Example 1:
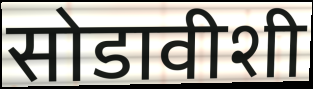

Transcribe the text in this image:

सोडावीशी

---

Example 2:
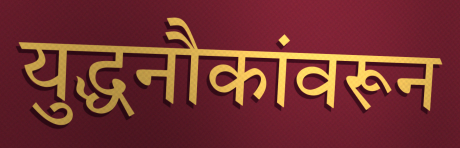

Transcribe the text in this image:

युद्धनौकांवरून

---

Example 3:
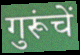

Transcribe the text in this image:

गुरूंचें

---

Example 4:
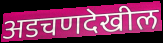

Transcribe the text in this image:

अडचणदेखील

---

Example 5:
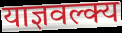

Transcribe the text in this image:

याज्ञवल्क्य